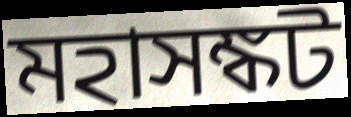
মহাসঙ্কট